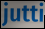
jutti